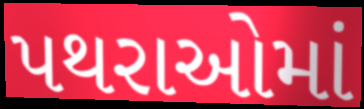
પથરાઓમાં